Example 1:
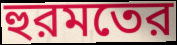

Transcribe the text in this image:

হুরমতের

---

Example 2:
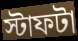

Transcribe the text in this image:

স্টাফটা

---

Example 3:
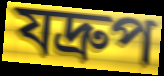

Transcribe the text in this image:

যদ্রুপ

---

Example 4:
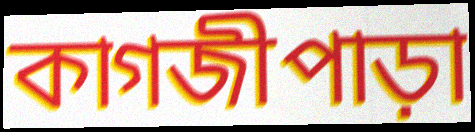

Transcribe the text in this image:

কাগজীপাড়া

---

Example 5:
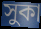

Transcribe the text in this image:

সুকা